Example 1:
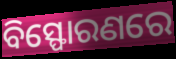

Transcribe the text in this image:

ବିସ୍ଫୋରଣରେ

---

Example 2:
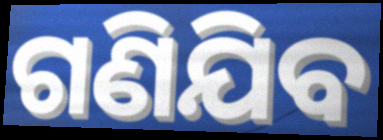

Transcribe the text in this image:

ଗଣିଯିବ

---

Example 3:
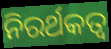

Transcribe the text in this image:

ନିରର୍ଥକତ୍ୱ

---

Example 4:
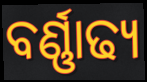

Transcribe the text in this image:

ବର୍ଣ୍ଣାଢ୍ୟ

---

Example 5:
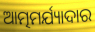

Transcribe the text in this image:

ଆତ୍ମମର୍ଯ୍ୟାଦାର